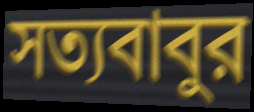
সত্যবাবুর